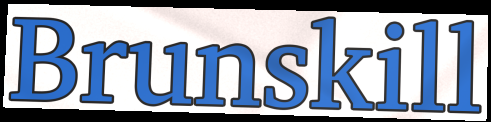
Brunskill